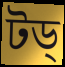
টড্